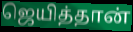
ஜெயித்தான்